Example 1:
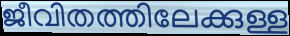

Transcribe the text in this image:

ജീവിതത്തിലേക്കുള്ള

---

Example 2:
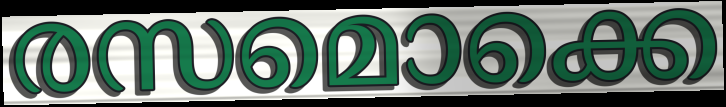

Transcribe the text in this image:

രസമൊക്കെ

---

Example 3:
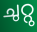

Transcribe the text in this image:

ചുറ്റു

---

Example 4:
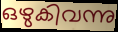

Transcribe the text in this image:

ഒഴുകിവന്നു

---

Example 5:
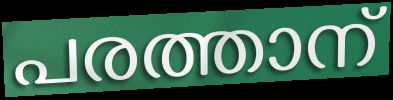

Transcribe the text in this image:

പരത്താന്